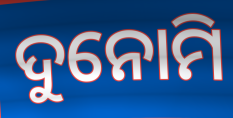
ଦୁନୋମି